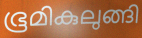
ഭൂമികുലുങ്ങി